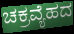
ಚಕ್ರವ್ಯೆಹದ